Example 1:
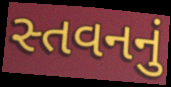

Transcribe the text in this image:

સ્તવનનું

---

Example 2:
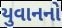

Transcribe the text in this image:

યુવાનનો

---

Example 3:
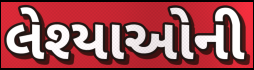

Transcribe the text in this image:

લેશ્યાઓની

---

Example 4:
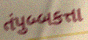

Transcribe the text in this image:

તંપુબ્બકત્તા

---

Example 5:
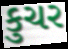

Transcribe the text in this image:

કુચર